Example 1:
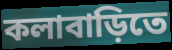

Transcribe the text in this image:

কলাবাড়িতে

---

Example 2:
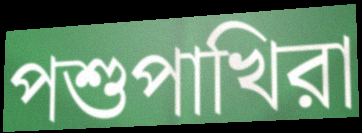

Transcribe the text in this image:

পশুপাখিরা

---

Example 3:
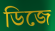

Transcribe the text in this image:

ডিজে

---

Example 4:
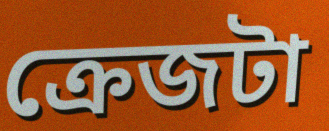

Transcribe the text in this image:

ক্রেজটা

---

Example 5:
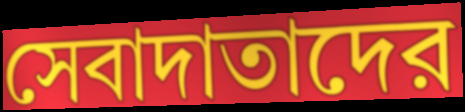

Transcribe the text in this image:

সেবাদাতাদের